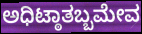
ಅಧಿಟ್ಠಾತಬ್ಬಮೇವ